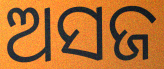
ଅସଜ